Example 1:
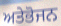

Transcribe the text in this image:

ਅਤੇਭੋਜਨ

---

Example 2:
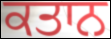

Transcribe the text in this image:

ਕਤਾਨ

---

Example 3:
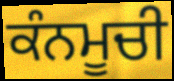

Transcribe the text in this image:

ਕੰਨਮੂਚੀ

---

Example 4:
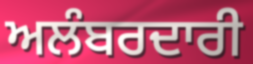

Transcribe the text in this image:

ਅਲੰਬਰਦਾਰੀ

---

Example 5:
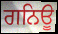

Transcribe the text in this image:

ਗਨਿਊ